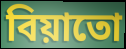
বিয়াতো